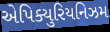
એપિક્યુરિયનિઝમ